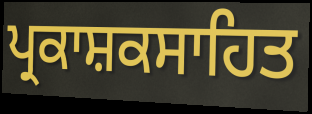
ਪ੍ਰਕਾਸ਼ਕਸਾਹਿਤ